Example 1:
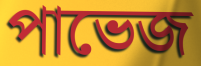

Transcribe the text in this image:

পাভেজ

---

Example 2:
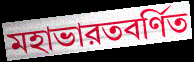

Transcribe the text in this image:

মহাভারতবর্ণিত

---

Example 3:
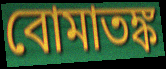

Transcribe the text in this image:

বোমাতঙ্ক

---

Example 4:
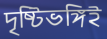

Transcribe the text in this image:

দৃষ্টিভঙ্গিই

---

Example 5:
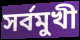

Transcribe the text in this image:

সর্বমুখী